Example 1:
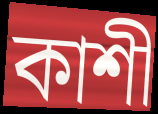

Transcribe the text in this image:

কাশী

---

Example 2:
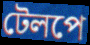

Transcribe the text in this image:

টেলপে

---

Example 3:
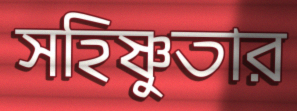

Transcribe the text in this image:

সহিষ্ণুতার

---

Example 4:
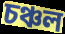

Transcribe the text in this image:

চঞ্চল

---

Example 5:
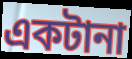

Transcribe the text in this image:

একটানা